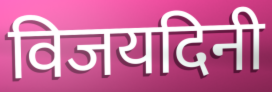
विजयदिनी